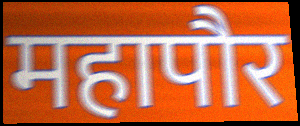
महापौर